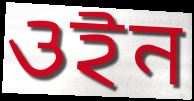
ওইন